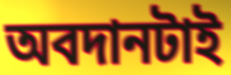
অবদানটাই